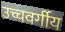
उच्चवर्गीय